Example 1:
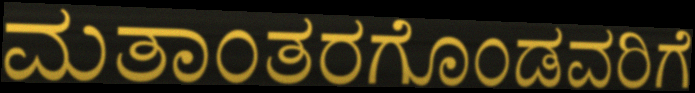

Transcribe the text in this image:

ಮತಾಂತರಗೊಂಡವರಿಗೆ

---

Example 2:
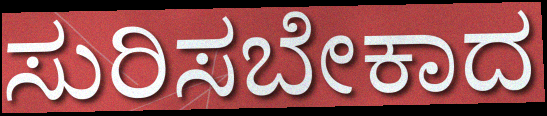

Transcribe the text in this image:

ಸುರಿಸಬೇಕಾದ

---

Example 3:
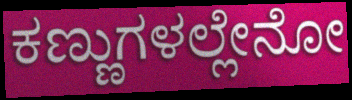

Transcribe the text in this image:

ಕಣ್ಣುಗಳಲ್ಲೇನೋ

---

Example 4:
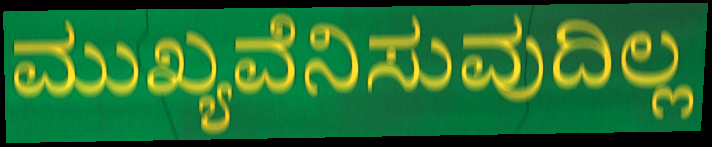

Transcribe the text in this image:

ಮುಖ್ಯವೆನಿಸುವುದಿಲ್ಲ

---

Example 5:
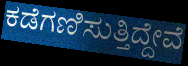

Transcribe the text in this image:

ಕಡೆಗಣಿಸುತ್ತಿದ್ದೇವೆ